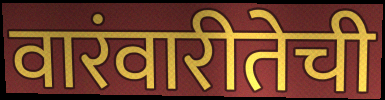
वारंवारीतेची